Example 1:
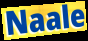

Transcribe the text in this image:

Naale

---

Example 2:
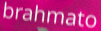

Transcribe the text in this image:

brahmato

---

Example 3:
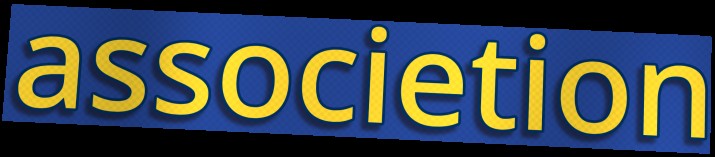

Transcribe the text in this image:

associetion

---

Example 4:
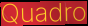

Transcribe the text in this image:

Quadro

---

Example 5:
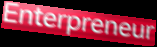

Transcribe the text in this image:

Enterpreneur